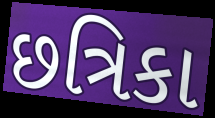
છત્રિકા